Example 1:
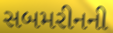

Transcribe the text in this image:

સબમરીનની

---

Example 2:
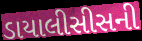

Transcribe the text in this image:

ડાયાલીસીસની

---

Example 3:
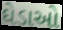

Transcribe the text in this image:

ઘેડાઓ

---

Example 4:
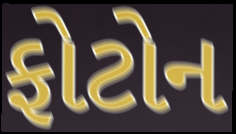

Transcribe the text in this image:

ફોટોન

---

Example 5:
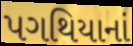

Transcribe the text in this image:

પગથિયાનાં